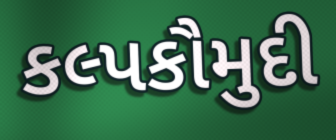
કલ્પકૌમુદી